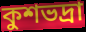
কুশভদ্রা